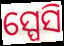
ସ୍ପେସି